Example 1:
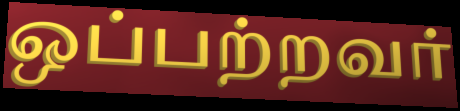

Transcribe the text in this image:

ஒப்பற்றவர்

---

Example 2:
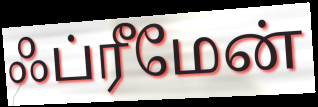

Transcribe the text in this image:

ஃப்ரீமேன்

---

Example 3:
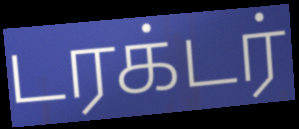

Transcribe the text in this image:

டரக்டர்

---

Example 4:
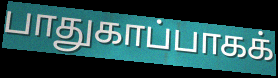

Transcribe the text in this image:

பாதுகாப்பாகக்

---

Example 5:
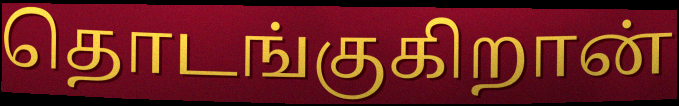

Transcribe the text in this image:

தொடங்குகிறான்